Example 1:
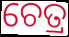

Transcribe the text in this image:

ଚେତ୍ର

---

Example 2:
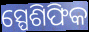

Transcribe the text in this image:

ସ୍ପେଶିଫିକ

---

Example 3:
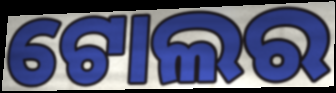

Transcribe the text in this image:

ଟୋଲର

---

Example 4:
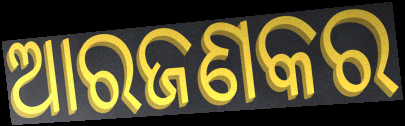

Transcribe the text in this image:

ଆରଜଣକର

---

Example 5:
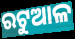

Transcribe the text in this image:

ରଟୁଆଳ